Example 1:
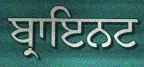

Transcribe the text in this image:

ਬ੍ਰਾਇਨਟ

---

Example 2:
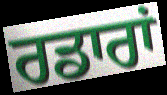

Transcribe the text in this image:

ਰਡਾਰਾਂ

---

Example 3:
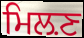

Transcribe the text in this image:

ਮਿਲ਼ਣ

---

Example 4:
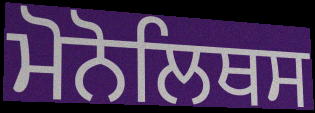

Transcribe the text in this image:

ਮੋਨੋਲਿਥਸ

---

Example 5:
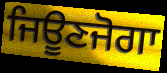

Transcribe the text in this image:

ਜਿਊਣਜੋਗਾ